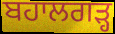
ਬਹਾਲਗੜ੍ਹ